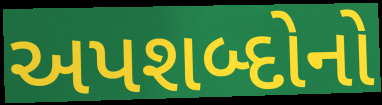
અપશબ્દોનો